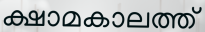
ക്ഷാമകാലത്ത്